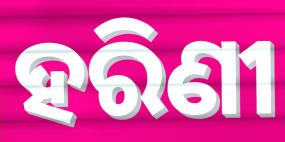
ହରିଣୀ